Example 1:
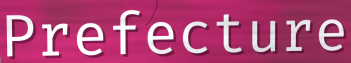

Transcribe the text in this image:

Prefecture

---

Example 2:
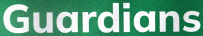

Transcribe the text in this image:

Guardians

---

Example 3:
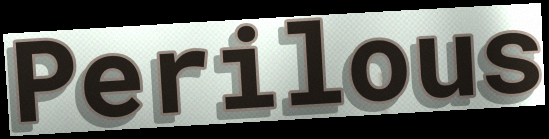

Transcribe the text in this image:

Perilous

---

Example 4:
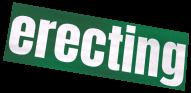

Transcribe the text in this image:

erecting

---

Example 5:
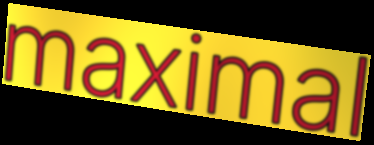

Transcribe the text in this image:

maximal